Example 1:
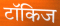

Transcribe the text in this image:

टॉकिज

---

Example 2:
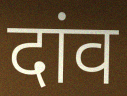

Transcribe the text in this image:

दांव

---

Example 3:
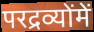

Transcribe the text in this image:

परद्रव्योंमें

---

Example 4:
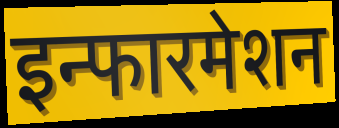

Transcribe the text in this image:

इन्फारमेशन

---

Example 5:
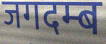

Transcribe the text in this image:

जगदम्ब